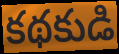
కథకుడి